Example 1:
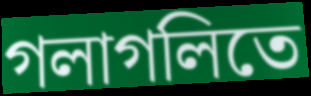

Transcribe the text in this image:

গলাগলিতে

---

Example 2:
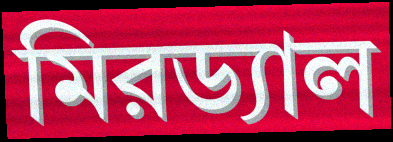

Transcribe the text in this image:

মিরড্যাল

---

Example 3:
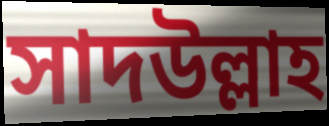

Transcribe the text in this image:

সাদউল্লাহ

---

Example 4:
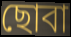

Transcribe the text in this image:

ছোবা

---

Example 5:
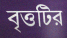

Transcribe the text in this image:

বৃত্তটির